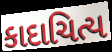
કાદાચિત્ય